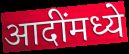
आदींमध्ये